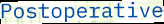
Postoperative